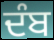
ਦੰਬ